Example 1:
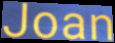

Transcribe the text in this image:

Joan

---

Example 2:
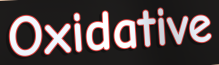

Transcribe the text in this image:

Oxidative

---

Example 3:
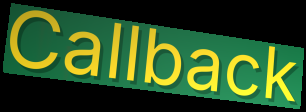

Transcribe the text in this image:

Callback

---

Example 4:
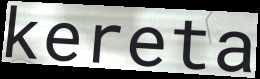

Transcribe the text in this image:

kereta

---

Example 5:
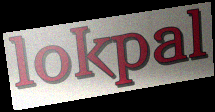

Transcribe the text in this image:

lokpal